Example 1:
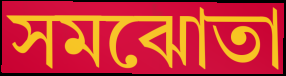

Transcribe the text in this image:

সমঝোতা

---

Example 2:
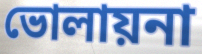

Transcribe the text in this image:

ভোলায়না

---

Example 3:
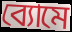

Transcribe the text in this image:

ব্যোমে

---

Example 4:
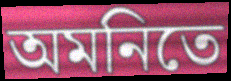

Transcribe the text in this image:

অমনিতে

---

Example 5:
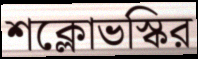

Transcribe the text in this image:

শক্লোভস্কির